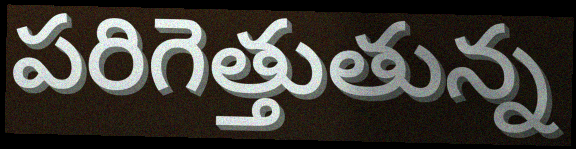
పరిగెత్తుతున్న